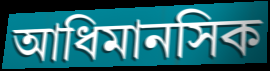
আধিমানসিক